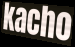
kacho